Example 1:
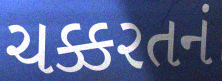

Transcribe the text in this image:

ચક્કરતનં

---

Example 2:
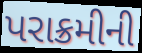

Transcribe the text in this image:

પરાક્રમીની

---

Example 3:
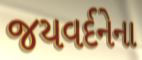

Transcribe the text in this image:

જયવર્દનેના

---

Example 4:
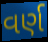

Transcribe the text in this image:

વર્ણ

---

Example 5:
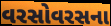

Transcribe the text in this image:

વરસોવરસના